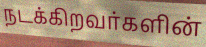
நடக்கிறவர்களின்